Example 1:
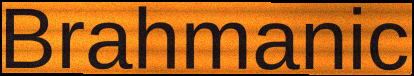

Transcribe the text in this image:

Brahmanic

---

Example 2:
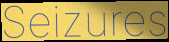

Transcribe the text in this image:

Seizures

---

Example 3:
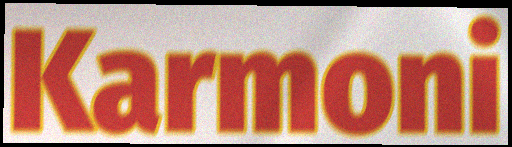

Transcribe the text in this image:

Karmoni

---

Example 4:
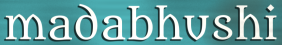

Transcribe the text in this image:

madabhushi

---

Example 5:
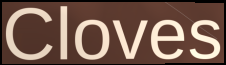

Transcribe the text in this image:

Cloves